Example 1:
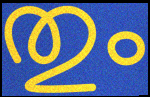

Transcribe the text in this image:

തും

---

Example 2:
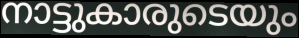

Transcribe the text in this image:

നാട്ടുകാരുടെയും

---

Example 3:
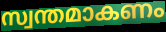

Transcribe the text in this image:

സ്വന്തമാകണം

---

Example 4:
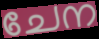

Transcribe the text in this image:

ചേന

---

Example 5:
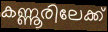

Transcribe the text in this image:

കണ്ണൂരിലേക്ക്